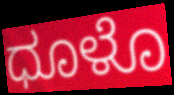
ಧೂಳೊ